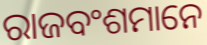
ରାଜବଂଶମାନେ